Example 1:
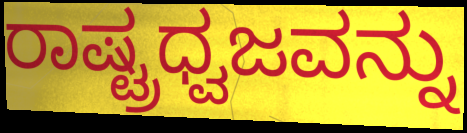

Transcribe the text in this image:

ರಾಷ್ಟ್ರಧ್ವಜವನ್ನು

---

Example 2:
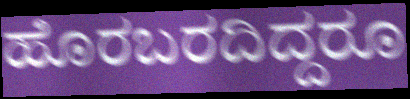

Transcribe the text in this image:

ಹೊರಬರದಿದ್ದರೂ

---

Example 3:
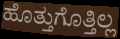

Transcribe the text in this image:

ಹೊತ್ತುಗೊತ್ತಿಲ್ಲ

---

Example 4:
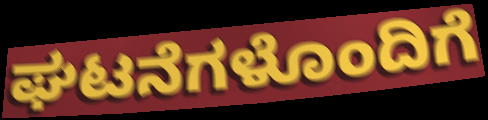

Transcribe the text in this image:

ಘಟನೆಗಳೊಂದಿಗೆ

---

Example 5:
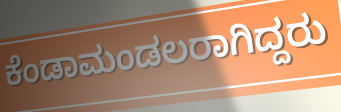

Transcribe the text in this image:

ಕೆಂಡಾಮಂಡಲರಾಗಿದ್ದರು